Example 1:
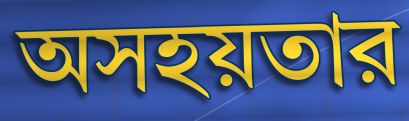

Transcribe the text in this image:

অসহয়তার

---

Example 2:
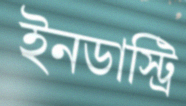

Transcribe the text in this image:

ইনডাস্ট্রি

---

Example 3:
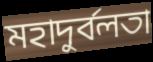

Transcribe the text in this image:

মহাদুর্বলতা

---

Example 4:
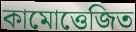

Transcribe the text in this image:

কামোত্তেজিত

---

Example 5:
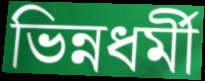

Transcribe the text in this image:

ভিন্নধর্মী